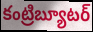
కంట్రిబ్యూటర్